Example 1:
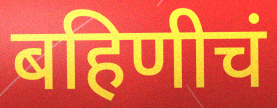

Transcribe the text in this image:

बहिणीचं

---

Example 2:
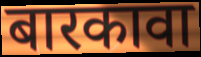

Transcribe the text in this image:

बारकावा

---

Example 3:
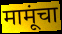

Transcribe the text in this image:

मामूंचा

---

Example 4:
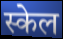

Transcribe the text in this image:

स्केल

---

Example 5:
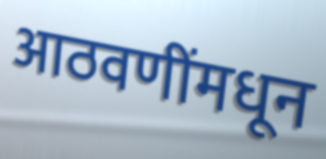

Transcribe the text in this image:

आठवणींमधून